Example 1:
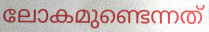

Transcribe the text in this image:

ലോകമുണ്ടെന്നത്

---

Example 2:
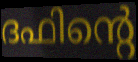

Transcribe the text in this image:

ദഫിന്റെ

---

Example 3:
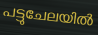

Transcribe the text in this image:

പട്ടുചേലയിൽ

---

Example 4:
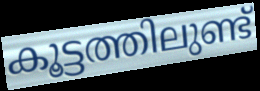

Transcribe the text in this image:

കൂട്ടത്തിലുണ്ട്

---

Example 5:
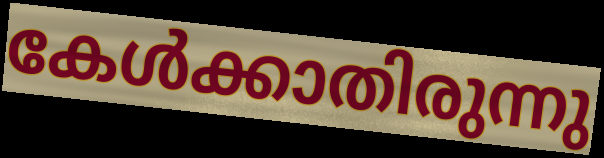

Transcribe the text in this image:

കേൾക്കാതിരുന്നു